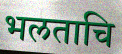
भलताचि